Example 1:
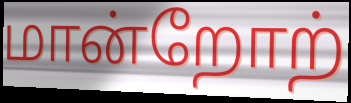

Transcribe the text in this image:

மான்றோற்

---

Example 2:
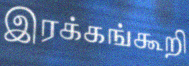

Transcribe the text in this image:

இரக்கங்கூறி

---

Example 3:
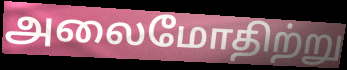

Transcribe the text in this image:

அலைமோதிற்று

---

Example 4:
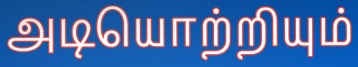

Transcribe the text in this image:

அடியொற்றியும்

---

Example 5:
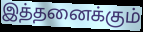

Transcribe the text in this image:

இத்தனைக்கும்